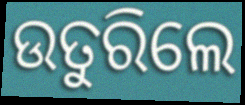
ଉତୁରିଲେ